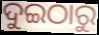
ଦୁଇଠାରୁ